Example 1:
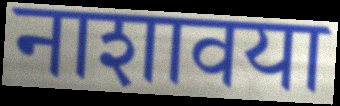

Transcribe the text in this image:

नाशावया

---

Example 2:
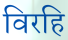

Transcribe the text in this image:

विरहि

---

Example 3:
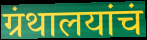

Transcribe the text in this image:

ग्रंथालयांचं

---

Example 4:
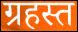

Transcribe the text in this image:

ग्रहस्त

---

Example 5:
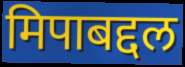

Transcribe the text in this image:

मिपाबद्दल